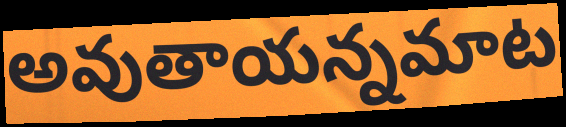
అవుతాయన్నమాట